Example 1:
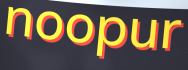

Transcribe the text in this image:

noopur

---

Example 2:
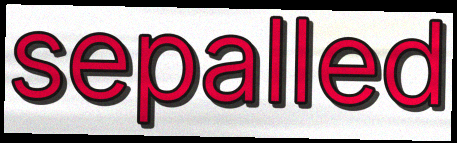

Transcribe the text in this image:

sepalled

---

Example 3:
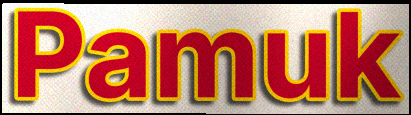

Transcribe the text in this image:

Pamuk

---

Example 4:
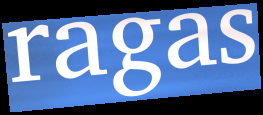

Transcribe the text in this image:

ragas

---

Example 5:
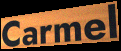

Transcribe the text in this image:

Carmel